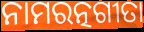
ନାମରତ୍ନଗୀତା